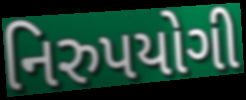
નિરુપયોગી